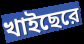
খাইছেরে